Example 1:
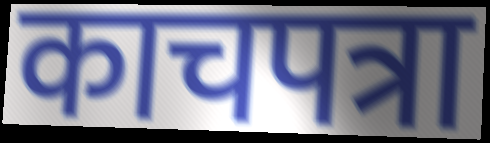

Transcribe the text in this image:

काचपत्रा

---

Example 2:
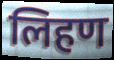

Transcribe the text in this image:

लिहण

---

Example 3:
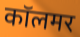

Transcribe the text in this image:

कॉलमर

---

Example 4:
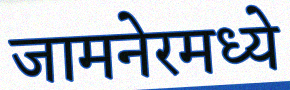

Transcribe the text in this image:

जामनेरमध्ये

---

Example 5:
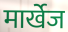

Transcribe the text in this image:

मार्खेज